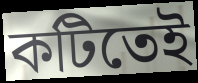
কটিতেই